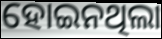
ହୋଇନଥିଲା